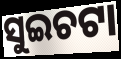
ସୁଇଚଟା